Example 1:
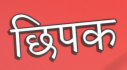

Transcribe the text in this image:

छिपक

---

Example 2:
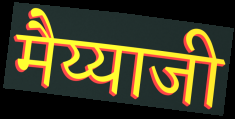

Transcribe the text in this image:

मैय्याजी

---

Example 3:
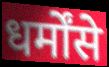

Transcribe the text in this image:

धर्मोंसे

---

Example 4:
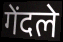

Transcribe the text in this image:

गेंदले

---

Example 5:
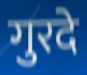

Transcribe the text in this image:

गुरदे